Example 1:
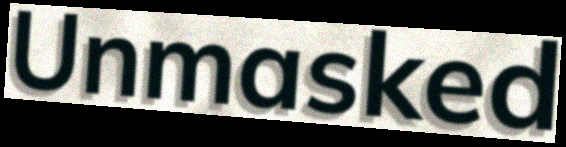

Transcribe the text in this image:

Unmasked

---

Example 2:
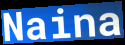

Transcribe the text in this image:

Naina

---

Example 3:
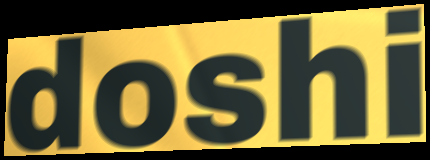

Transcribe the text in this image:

doshi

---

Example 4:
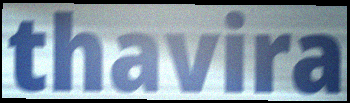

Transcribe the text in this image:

thavira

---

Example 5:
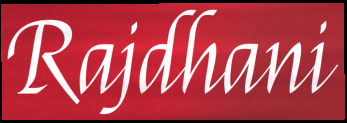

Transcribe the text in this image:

Rajdhani